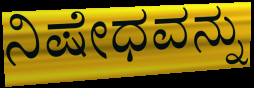
ನಿಷೇಧವನ್ನು